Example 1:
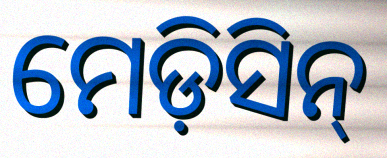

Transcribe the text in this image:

ମେଡ଼ିସିନ୍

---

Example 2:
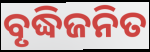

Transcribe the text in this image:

ବୃଦ୍ଧିଜନିତ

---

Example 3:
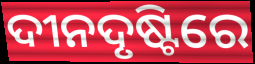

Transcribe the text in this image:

ଦୀନଦୃଷ୍ଟିରେ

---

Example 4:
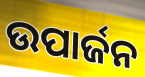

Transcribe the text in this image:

ଉପାର୍ଜନ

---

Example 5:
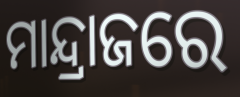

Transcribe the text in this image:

ମାନ୍ଦ୍ରାଜରେ